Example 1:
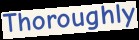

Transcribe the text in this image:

Thoroughly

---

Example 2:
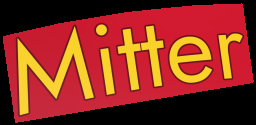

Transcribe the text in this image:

Mitter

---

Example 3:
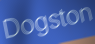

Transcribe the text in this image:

Dogston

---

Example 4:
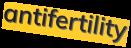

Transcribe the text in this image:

antifertility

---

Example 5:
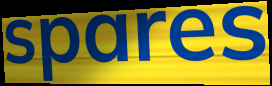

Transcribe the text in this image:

spares